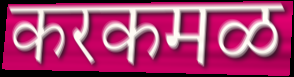
करकमळ